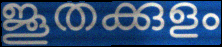
ജൂതക്കുളം